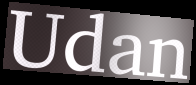
Udan